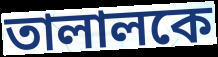
তালালকে